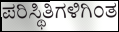
ಪರಿಸ್ಥಿತಿಗಳಿಗಿಂತ